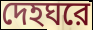
দেহঘরে